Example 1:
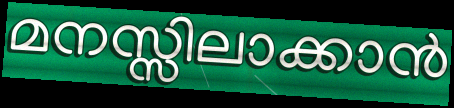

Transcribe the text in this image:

മനസ്സിലാക്കാൻ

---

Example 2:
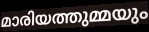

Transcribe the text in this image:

മാരിയത്തുമ്മയും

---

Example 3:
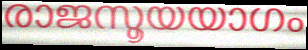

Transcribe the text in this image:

രാജസൂയയാഗം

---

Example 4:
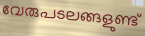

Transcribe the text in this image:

വേരുപടലങ്ങളുണ്ട്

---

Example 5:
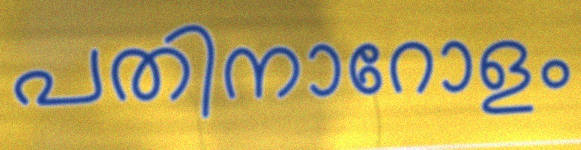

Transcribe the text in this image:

പതിനാറോളം